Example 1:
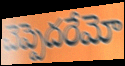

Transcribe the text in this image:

చెప్పెదరేమో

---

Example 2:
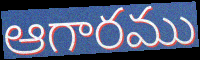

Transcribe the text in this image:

ఆగారము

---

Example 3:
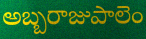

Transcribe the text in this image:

అబ్బరాజుపాలెం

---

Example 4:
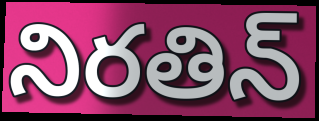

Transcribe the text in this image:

నిరతిన్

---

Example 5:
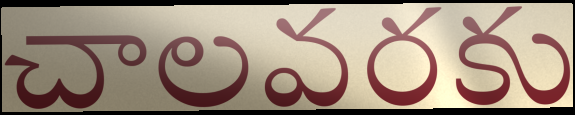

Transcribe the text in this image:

చాలవరకు